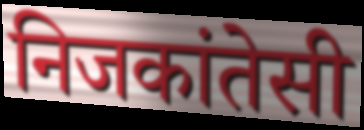
निजकांतेसी